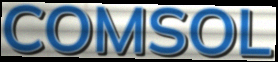
COMSOL